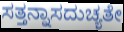
ಸತ್ತನ್ನಾಸದುಚ್ಯತೇ